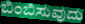
ಬಿಂಬಿಸುವುದು